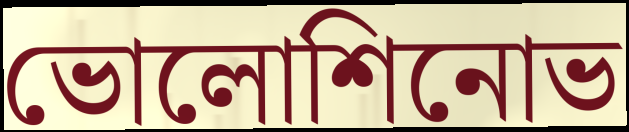
ভোলোশিনোভ